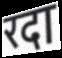
रदा